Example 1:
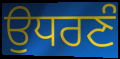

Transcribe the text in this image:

ਉਧਰਣੰ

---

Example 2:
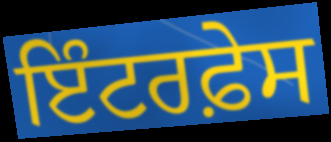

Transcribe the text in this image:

ਇੰਟਰਫ਼ੇਸ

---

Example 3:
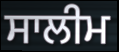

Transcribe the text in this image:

ਸਾਲੀਮ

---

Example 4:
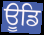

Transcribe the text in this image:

ਊਡਿ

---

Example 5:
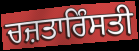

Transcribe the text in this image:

ਚਜ਼ਤਾਰਿੰਸਤੀ